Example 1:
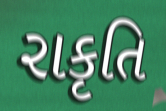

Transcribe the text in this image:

રાકૃતિ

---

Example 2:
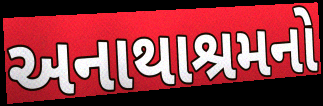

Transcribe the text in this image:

અનાથાશ્રમનો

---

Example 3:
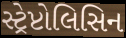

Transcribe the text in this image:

સ્ટ્રેપ્ટોલિસિન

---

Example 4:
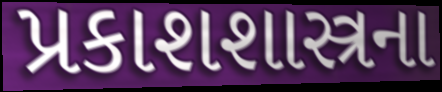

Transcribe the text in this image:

પ્રકાશશાસ્ત્રના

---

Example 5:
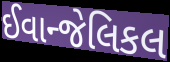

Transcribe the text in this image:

ઈવાન્જેલિકલ